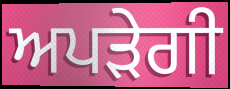
ਅਪੜੇਗੀ